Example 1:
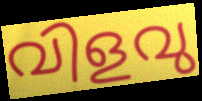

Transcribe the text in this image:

വിളവു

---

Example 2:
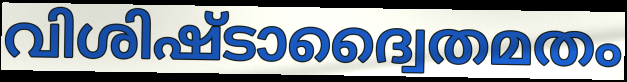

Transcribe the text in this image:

വിശിഷ്ടാദ്വൈതമതം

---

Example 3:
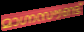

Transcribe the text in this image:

മാഗ്നസൗണ്ട്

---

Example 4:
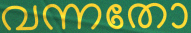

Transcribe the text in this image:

വന്നതോ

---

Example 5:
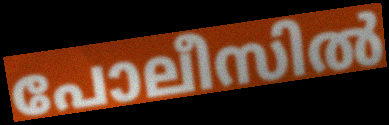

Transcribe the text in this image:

പോലീസിൽ